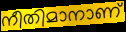
നീതിമാനാണ്